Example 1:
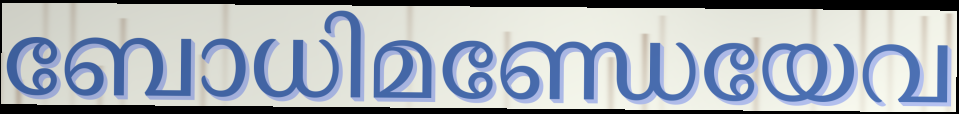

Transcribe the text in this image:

ബോധിമണ്ഡേയേവ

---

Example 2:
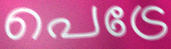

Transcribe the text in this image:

പെട്രേ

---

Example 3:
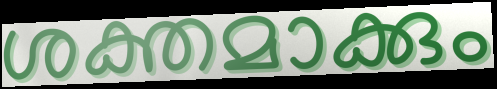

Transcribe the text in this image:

ശക്തമാക്കും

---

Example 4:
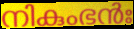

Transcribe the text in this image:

നികുംഭൻഃ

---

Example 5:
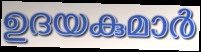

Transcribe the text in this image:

ഉദയകുമാർ